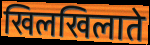
खिलखिलाते